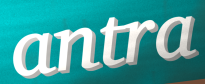
antra